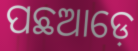
ପଛଆଡ଼େ